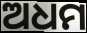
ଅଧମ